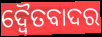
ଦ୍ୱୈତବାଦର